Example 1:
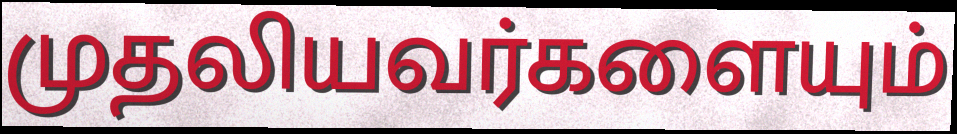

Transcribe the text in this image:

முதலியவர்களையும்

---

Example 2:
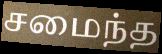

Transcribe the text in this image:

சமைந்த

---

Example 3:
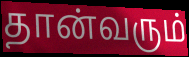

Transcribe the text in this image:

தான்வரும்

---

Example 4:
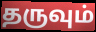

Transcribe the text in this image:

தருவும்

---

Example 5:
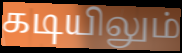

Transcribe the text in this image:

கடியிலும்